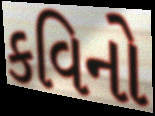
કવિનો